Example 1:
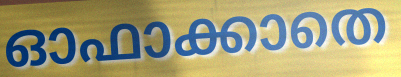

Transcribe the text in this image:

ഓഫാക്കാതെ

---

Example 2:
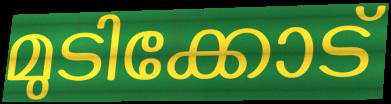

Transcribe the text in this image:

മുടിക്കോട്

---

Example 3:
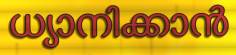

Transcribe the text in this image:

ധ്യാനിക്കാൻ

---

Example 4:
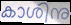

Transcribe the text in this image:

കാശിനു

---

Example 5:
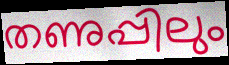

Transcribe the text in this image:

തണുപ്പിലും